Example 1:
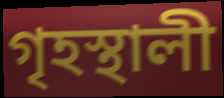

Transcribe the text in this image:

গৃহস্থালী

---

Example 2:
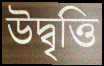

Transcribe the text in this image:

উদ্বৃত্তি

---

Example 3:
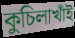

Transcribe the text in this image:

কুচিলাখাঁই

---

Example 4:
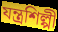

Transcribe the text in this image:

যন্ত্রশিল্পী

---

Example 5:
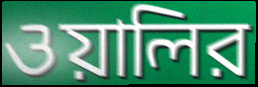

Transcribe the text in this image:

ওয়ালির